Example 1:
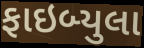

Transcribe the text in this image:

ફાઇબ્યુલા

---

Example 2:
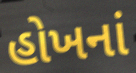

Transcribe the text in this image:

હોખનાં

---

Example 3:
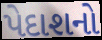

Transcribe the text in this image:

પેદાશનો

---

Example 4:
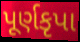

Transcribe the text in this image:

પૂર્ણકૃપા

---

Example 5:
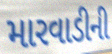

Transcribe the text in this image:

મારવાડીની